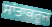
ਸਾਂਤਾਕਰੂਜ